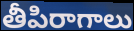
తీపిరాగాలు